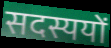
सदस्ययों